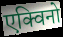
एक्विनो